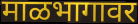
माळभागावर